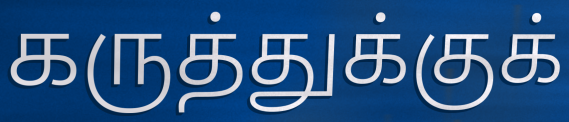
கருத்துக்குக்